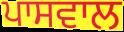
ਪਾਸਵਾਲ